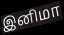
இனிமா